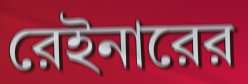
রেইনারের